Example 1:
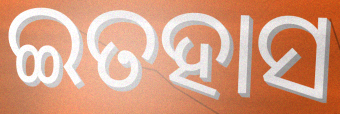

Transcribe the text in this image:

ଇତହାସ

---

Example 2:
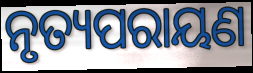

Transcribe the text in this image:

ନୃତ୍ୟପରାୟଣ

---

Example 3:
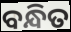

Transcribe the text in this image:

ବନ୍ଧିତ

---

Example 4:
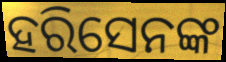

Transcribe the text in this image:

ହରିସେନଙ୍କ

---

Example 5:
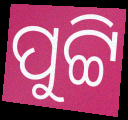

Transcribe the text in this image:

ପୁଟ୍ଟି